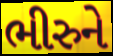
ભીરુને